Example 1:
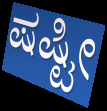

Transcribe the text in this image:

ಷಷ್ಟೀ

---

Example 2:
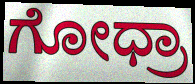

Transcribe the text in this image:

ಗೋಧ್ರಾ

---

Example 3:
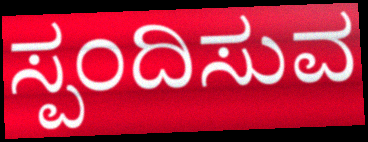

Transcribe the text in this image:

ಸ್ಪಂದಿಸುವ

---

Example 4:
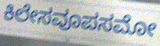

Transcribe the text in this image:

ಕಿಲೇಸವೂಪಸಮೋ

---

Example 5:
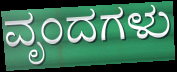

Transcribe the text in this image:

ವೃಂದಗಳು